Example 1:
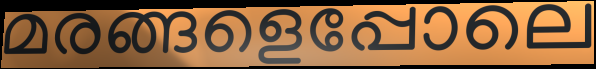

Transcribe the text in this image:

മരങ്ങളെപ്പോലെ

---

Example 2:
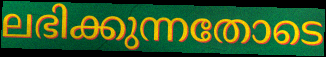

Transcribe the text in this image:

ലഭിക്കുന്നതോടെ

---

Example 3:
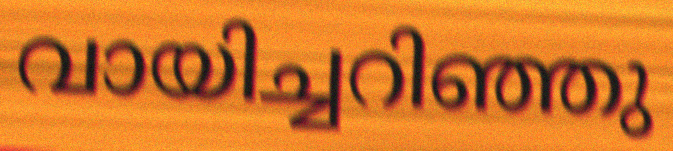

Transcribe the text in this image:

വായിച്ചറിഞ്ഞു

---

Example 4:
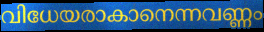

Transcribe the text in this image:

വിധേയരാകാനെന്നവണ്ണം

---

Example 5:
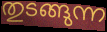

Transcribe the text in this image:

തുടങ്ങുന്ന